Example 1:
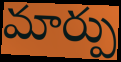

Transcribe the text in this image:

మార్పు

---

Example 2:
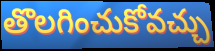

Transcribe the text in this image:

తొలగించుకోవచ్చు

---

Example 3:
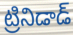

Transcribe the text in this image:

ట్రినిడాడ్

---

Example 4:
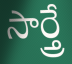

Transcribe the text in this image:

సార్త్రే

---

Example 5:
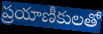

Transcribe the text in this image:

ప్రయాణీకులతో